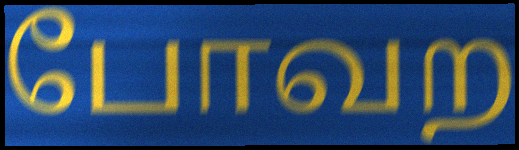
போவற